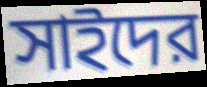
সাইদের